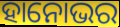
ହାନୋଭର